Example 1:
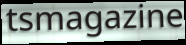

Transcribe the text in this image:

tsmagazine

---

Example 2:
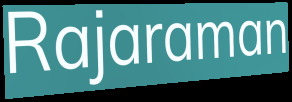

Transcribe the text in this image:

Rajaraman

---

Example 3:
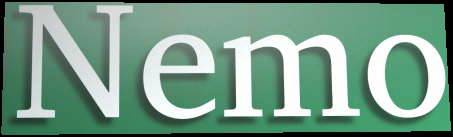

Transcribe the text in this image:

Nemo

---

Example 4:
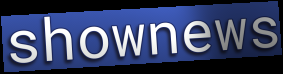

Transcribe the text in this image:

shownews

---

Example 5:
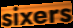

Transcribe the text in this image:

sixers